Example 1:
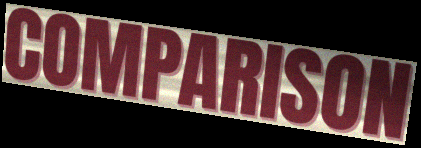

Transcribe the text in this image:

COMPARISON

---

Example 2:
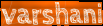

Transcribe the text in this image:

varshani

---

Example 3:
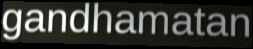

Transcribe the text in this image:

gandhamatan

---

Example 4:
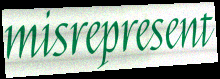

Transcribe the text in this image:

misrepresent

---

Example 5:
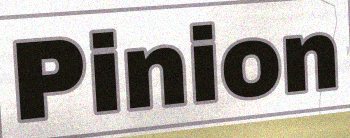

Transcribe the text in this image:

Pinion